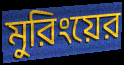
মুরিংয়ের